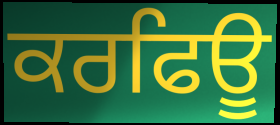
ਕਰਫਿਊ